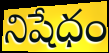
నిషేధం